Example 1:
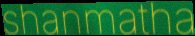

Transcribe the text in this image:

shanmatha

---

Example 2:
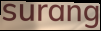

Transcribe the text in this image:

surang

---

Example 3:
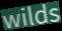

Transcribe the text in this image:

wilds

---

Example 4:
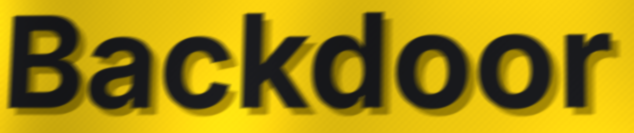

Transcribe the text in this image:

Backdoor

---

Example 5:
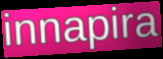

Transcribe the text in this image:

innapira